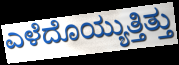
ಎಳೆದೊಯ್ಯುತ್ತಿತ್ತು